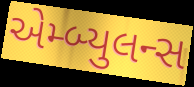
એમ્બ્યુલન્સ